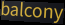
balcony